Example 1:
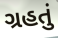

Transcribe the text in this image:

ગ્રહતું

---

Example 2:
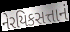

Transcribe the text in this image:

નેરયિકસત્તાનં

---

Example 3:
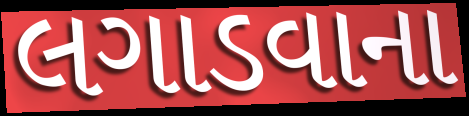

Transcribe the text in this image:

લગાડવાના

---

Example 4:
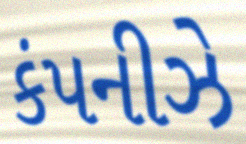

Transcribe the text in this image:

કંપનીઝે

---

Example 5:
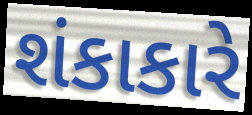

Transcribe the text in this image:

શંકાકારે